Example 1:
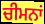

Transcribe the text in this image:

ਚੀਮਨਾਂ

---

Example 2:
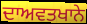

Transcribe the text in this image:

ਦਾਅਵਤਖਾਨੇ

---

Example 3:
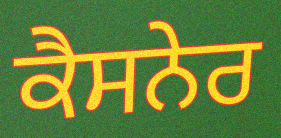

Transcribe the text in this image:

ਕੈਸਨੇਰ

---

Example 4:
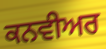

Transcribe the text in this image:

ਕਨਵੀਅਰ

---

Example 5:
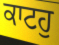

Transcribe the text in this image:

ਕਾਟਹੁ